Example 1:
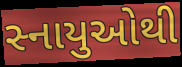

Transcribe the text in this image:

સ્નાયુઓથી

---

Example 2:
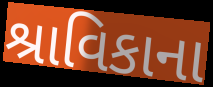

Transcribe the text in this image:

શ્રાવિકાના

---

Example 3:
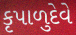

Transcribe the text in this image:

કૃપાળુદેવે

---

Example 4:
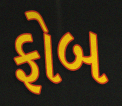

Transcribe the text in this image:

ફોબ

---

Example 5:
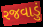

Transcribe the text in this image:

રજવાડું